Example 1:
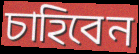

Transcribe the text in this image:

চাহিবেন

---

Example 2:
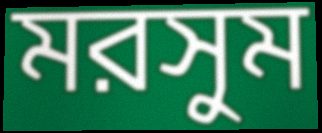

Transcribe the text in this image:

মরসুম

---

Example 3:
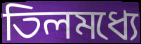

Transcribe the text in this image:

তিলমধ্যে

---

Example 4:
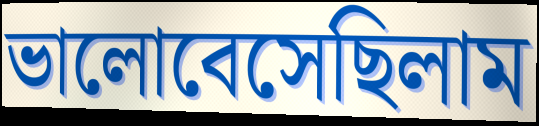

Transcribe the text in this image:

ভালোবেসেছিলাম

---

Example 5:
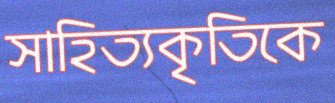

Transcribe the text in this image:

সাহিত্যকৃতিকে